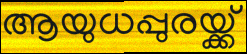
ആയുധപ്പുരയ്ക്ക്